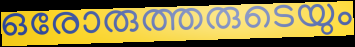
ഒരോരുത്തരുടെയും